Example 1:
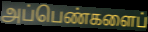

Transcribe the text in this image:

அப்பெண்களைப்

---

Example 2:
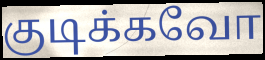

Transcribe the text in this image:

குடிக்கவோ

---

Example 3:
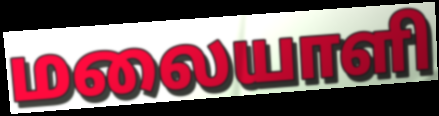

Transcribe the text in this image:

மலையாளி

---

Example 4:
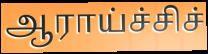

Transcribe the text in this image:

ஆராய்ச்சிச்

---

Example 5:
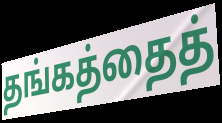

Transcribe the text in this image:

தங்கத்தைத்